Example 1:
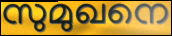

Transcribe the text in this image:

സുമുഖനെ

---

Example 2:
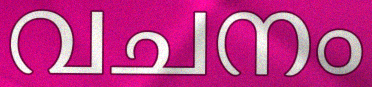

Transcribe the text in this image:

വചനം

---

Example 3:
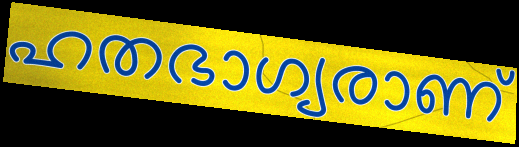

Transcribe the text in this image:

ഹതഭാഗ്യരാണ്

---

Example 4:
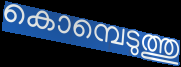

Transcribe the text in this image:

കൊമ്പെടുത്തു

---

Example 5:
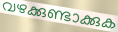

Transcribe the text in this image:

വഴക്കുണ്ടാക്കുക